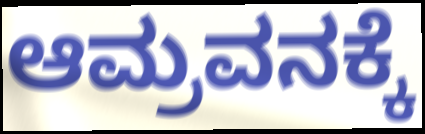
ಆಮ್ರವನಕ್ಕೆ